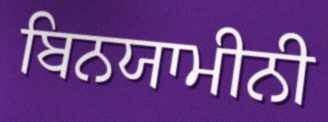
ਬਿਨਯਾਮੀਨੀ